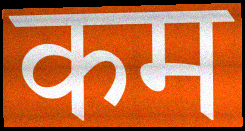
कम